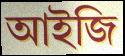
আইজি